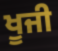
ਖੂਜੀ